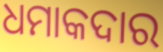
ଧମାକଦାର